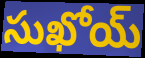
సుఖోయ్